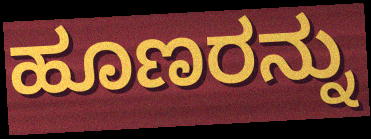
ಹೂಣರನ್ನು